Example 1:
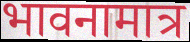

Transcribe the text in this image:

भावनामात्र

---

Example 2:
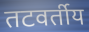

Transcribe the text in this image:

तटवर्तीय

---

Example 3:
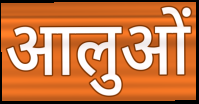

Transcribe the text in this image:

आलुओं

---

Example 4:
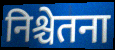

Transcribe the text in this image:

निश्चेतना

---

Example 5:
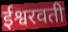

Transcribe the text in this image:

ईश्वरवती